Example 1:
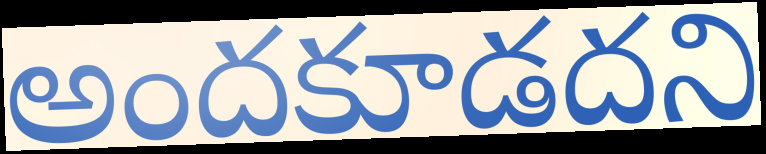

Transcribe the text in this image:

అందకూడదని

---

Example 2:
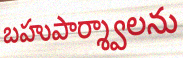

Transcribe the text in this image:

బహుపార్శ్వాలను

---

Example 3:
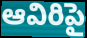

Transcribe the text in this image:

ఆవిరిపై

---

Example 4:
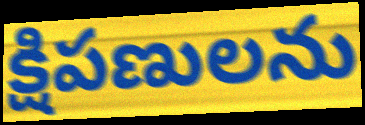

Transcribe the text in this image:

క్షిపణులను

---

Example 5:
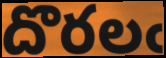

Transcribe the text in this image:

దొరలఁ